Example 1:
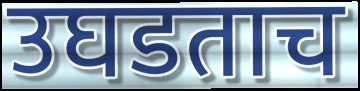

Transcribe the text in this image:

उघडताच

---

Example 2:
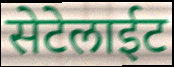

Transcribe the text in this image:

सेटेलाईट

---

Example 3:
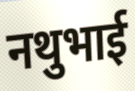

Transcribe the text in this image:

नथुभाई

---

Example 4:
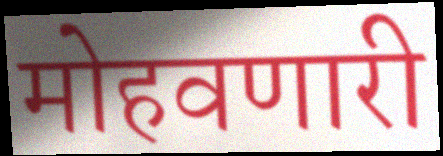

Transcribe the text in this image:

मोहवणारी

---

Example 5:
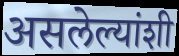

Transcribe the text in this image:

असलेल्यांशी